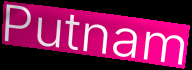
Putnam